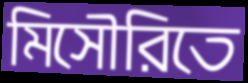
মিসৌরিতে